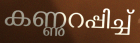
കണ്ണുറപ്പിച്ച്